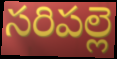
సరిపల్లె